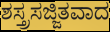
ಶಸ್ತ್ರಸಜ್ಜಿತವಾದ